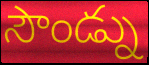
సౌండ్ను